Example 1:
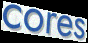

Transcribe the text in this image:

cores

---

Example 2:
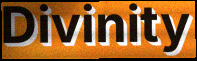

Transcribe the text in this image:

Divinity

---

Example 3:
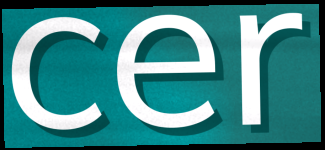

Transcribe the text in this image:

cer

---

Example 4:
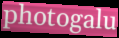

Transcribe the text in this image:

photogalu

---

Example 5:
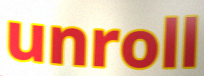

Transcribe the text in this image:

unroll